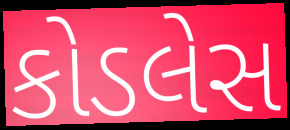
કોડલેસ